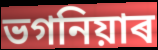
ভগনিয়াৰ